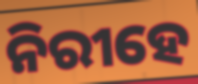
ନିରୀହେ